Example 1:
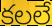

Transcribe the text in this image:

కలలే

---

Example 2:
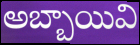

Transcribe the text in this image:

అబ్బాయివి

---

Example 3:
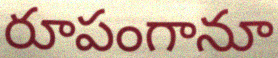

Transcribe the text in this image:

రూపంగానూ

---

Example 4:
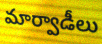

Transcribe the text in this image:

మార్వాడీలు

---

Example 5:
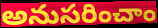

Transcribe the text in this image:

అనుసరించాం